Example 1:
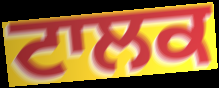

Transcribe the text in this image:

ਟਾਲਕ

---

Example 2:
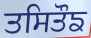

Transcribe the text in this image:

ਤਸਿਤੌਙ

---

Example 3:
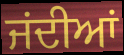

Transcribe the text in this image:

ਜਂਦੀਆਂ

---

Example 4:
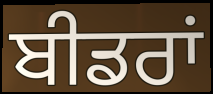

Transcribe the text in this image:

ਬੀਡਰਾਂ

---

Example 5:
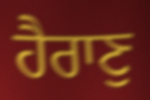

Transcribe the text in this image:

ਹੈਰਾਣੁ